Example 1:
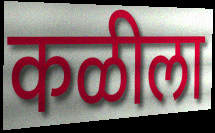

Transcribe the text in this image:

कळीला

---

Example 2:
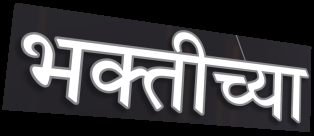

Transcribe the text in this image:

भक्‍तीच्या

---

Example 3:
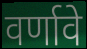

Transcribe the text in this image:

वर्णावे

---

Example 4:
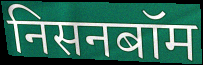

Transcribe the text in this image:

निसनबॉम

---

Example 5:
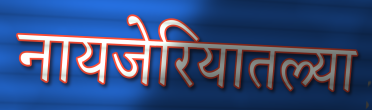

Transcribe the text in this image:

नायजेरियातल्या